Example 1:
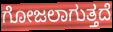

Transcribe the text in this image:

ಗೋಜಲಾಗುತ್ತದೆ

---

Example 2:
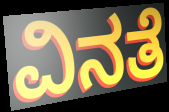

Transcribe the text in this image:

ವಿನತೆ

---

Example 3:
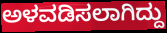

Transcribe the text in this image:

ಅಳವಡಿಸಲಾಗಿದ್ದು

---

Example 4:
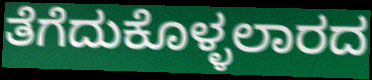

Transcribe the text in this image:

ತೆಗೆದುಕೊಳ್ಳಲಾರದ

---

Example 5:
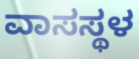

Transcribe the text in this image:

ವಾಸಸ್ಥಳ